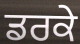
ਡਰਕੇ